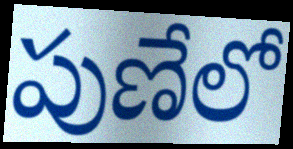
పుణేలో